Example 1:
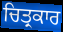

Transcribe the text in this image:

ਚਿਤ੍ਰਕਾਰ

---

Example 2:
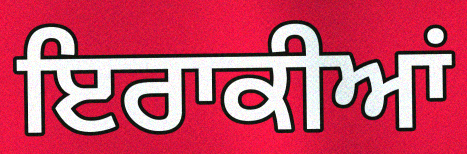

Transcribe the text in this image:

ਇਰਾਕੀਆਂ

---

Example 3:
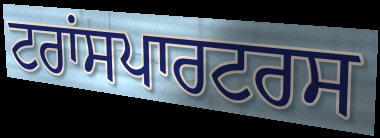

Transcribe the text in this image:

ਟਰਾਂਸਪਾਰਟਰਸ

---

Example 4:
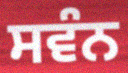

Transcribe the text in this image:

ਸਵੰਨ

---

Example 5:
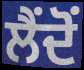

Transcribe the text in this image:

ਲੈਂਦੋਂ